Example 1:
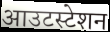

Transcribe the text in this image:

आउटस्टेशन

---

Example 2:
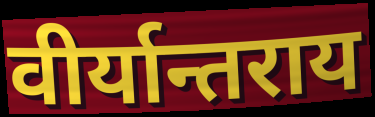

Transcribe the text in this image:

वीर्यान्तराय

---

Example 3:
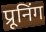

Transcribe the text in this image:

प्रूनिंग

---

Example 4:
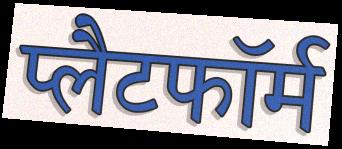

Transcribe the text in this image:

प्लैटफॉर्म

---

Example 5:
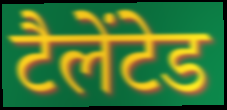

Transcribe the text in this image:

टैलेंटेड